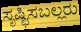
ಸೃಷ್ಟಿಸಬಲ್ಲರು